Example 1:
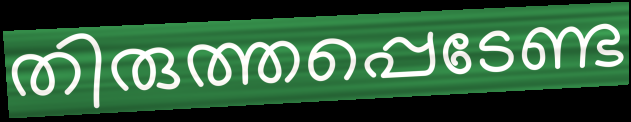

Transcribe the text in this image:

തിരുത്തപ്പെടേണ്ട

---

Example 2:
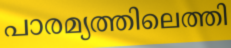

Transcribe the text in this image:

പാരമ്യത്തിലെത്തി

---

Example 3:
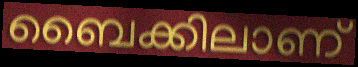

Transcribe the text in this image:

ബൈക്കിലാണ്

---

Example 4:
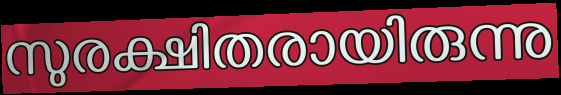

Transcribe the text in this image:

സുരക്ഷിതരായിരുന്നു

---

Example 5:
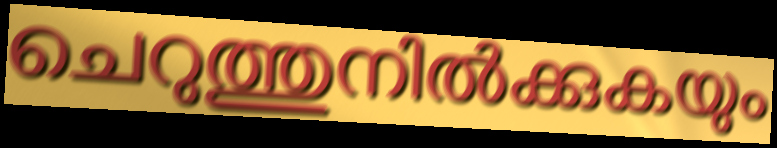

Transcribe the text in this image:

ചെറുത്തുനിൽക്കുകയും